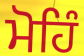
ਮੋਹਿੰ